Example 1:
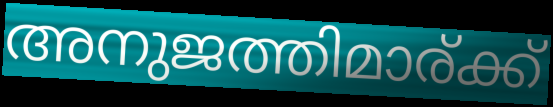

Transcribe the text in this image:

അനുജത്തിമാര്ക്ക്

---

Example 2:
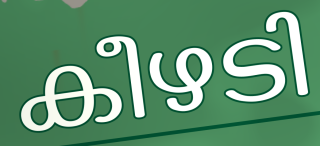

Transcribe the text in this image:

കീഴടി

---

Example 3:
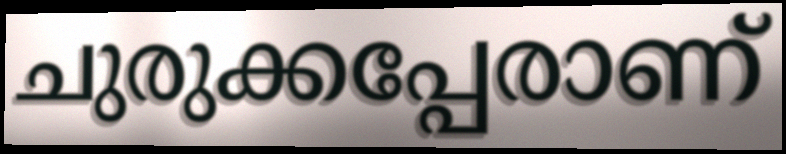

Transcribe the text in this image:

ചുരുക്കപ്പേരാണ്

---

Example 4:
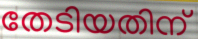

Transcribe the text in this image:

തേടിയതിന്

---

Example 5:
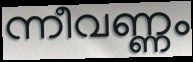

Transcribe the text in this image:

ന്നീവണ്ണം